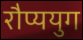
रौप्ययुग